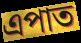
এপাত